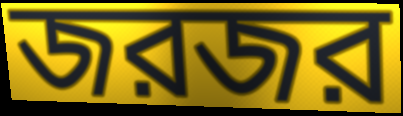
জরজর